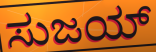
ಸುಜಯ್